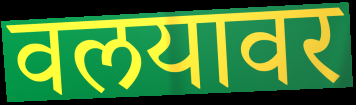
वलयावर